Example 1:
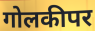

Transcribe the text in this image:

गोलकीपर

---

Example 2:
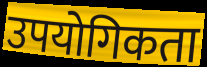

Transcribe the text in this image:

उपयोगिकता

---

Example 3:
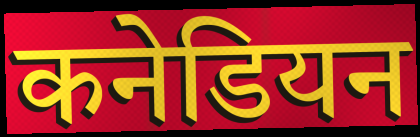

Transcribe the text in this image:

कनेडियन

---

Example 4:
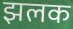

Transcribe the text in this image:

झलक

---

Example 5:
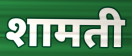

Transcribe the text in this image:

शामती